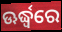
ଊର୍ଦ୍ଧ୍ୱରେ